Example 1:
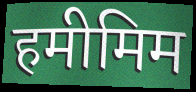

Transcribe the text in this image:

हमीमिम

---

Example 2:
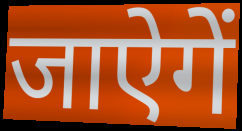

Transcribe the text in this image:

जाऐगें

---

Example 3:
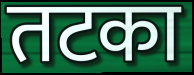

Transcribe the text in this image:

तटका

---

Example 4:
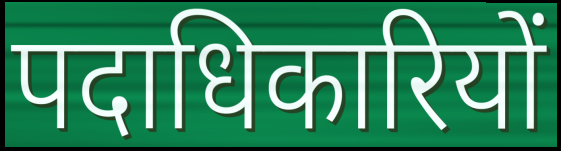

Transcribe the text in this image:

पदाधिकारियों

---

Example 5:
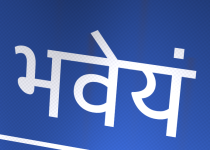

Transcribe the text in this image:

भवेयं